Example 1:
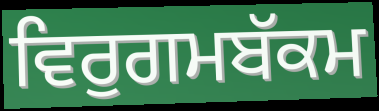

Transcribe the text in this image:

ਵਿਰੁਗਮਬੱਕਮ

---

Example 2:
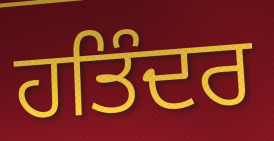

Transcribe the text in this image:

ਹਤਿੰਦਰ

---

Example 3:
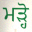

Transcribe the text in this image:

ਮੜ੍ਹੋ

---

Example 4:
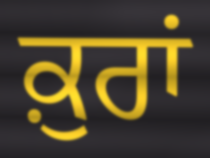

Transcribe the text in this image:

ਕ਼ੁਰਾਂ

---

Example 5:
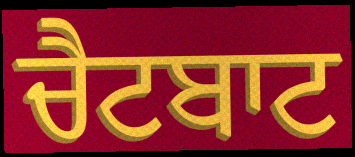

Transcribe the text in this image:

ਚੈਟਬਾਟ